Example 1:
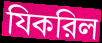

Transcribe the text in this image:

যিকরিল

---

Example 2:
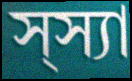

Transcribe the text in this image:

স্স্যা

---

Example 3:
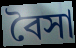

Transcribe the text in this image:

বৈসা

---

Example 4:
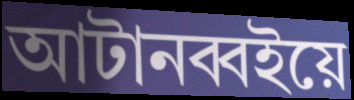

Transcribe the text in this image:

আটানব্বইয়ে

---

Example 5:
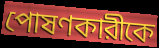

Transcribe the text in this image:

পোষণকারীকে